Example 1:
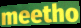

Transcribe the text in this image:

meetho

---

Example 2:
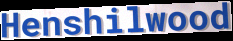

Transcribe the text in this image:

Henshilwood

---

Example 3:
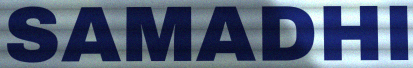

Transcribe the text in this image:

SAMADHI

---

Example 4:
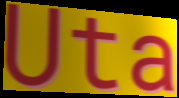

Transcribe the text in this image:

Uta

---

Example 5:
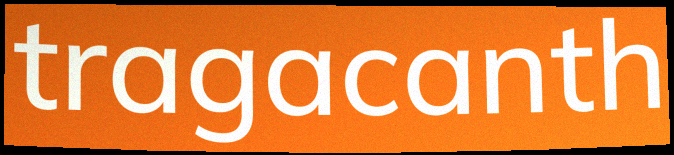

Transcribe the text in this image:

tragacanth